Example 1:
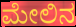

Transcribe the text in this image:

ಮೇಲಿನ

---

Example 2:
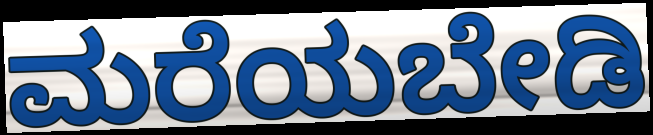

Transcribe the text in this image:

ಮರೆಯಬೇಡಿ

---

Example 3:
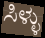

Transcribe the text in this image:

ಸಿಳ್ಳು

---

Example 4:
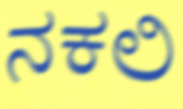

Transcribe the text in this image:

ನಕಲಿ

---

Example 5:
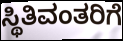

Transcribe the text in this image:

ಸ್ಥಿತಿವಂತರಿಗೆ